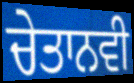
ਚੇਤਾਨਵੀ